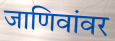
जाणिवांवर